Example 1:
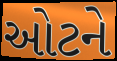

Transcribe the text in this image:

ઓટને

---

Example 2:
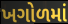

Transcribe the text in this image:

ખગોળમાં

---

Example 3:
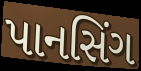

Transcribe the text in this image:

પાનસિંગ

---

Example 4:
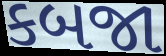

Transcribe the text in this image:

કબજા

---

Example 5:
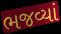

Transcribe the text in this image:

ભજવ્યાં